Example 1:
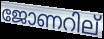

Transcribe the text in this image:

ജോണറില്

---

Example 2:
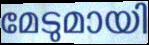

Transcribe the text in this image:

മേടുമായി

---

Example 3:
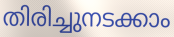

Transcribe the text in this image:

തിരിച്ചുനടക്കാം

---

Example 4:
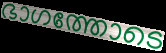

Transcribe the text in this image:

ഭാഗത്തോടെ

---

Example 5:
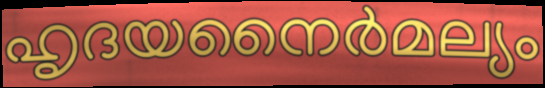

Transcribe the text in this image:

ഹൃദയനൈർമല്യം